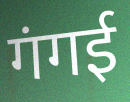
गंगई